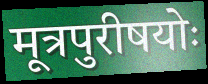
मूत्रपुरीषयोः